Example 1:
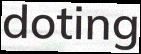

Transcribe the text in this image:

doting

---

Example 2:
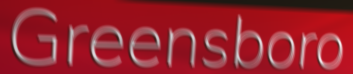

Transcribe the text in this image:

Greensboro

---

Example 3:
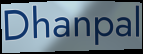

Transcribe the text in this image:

Dhanpal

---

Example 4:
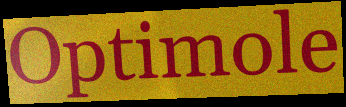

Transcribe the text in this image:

Optimole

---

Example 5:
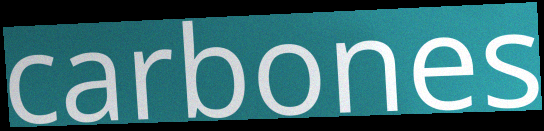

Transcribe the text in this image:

carbones